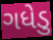
ગધેડુ